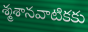
శ్మశానవాటికకు